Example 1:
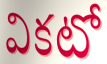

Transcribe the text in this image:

వికటో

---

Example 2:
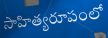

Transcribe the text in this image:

సాహిత్యరూపంలో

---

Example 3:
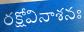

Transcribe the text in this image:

రక్షోవినాశనః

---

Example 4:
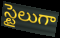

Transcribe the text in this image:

స్టైలుగా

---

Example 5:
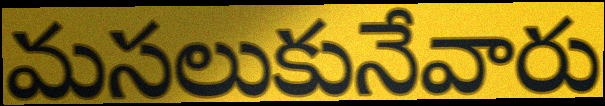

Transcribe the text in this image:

మసలుకునేవారు